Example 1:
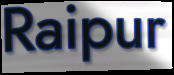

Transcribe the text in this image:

Raipur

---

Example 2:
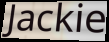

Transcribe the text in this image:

Jackie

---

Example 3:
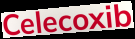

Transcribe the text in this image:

Celecoxib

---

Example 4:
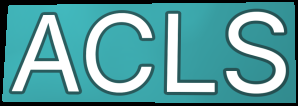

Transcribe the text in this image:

ACLS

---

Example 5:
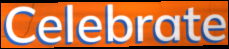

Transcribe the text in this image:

Celebrate